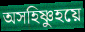
অসহিষ্ণুহয়ে